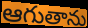
ఆగుతాను